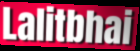
Lalitbhai